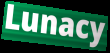
Lunacy